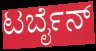
ಟರ್ಬೈನ್